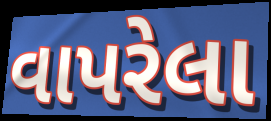
વાપરેલા